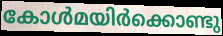
കോൾമയിർക്കൊണ്ടു